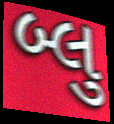
બ્લુ